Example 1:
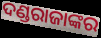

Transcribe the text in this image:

ଦଣ୍ଡରାଜାଙ୍କର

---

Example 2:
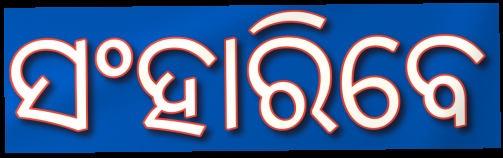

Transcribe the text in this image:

ସଂହାରିବେ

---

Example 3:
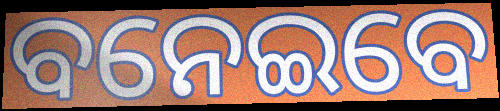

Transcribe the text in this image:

ବନେଇବେ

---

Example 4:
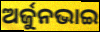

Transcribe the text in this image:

ଅର୍ଜୁନଭାଇ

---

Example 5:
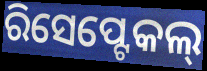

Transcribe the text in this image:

ରିସେପ୍ଟେକଲ୍